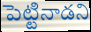
పెట్టినాడని